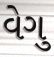
વેગુ